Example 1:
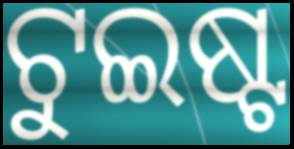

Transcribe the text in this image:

ଟୁଇଷ୍ଟ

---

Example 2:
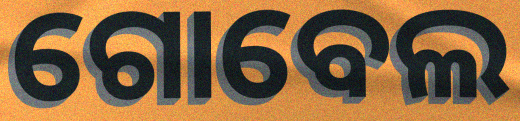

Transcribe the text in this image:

ଗୋବେଲ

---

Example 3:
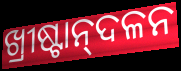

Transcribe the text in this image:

ଖ୍ରୀଷ୍ଟାନ୍‌ଦଳନ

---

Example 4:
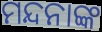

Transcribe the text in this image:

ମନ୍ଦନାଙ୍କ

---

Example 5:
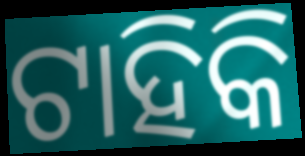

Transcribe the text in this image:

ଟାହିକି